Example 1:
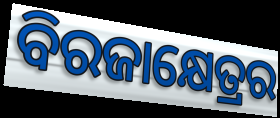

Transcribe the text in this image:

ବିରଜାକ୍ଷେତ୍ରର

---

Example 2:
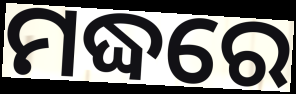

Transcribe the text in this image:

ମଦ୍ଧରେ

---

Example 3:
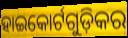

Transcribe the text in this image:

ହାଇକୋର୍ଟଗୁଡ଼ିକର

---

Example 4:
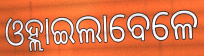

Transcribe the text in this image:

ଓହ୍ଲାଇଲାବେଳେ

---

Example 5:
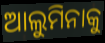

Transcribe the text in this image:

ଆଲୁମିନାକୁ